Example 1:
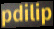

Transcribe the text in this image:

pdilip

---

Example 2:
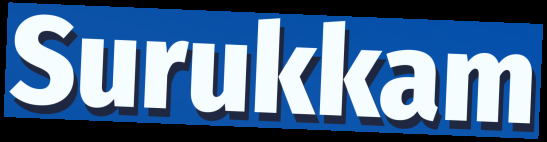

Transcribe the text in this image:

Surukkam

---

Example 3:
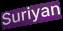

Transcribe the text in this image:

Suriyan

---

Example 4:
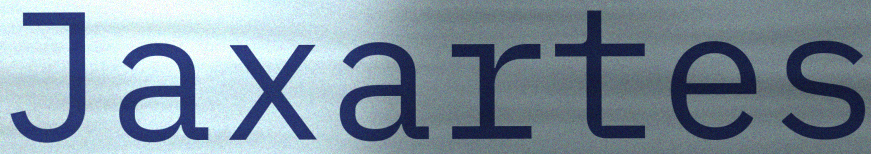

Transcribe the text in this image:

Jaxartes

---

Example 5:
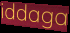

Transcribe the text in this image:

iddaga